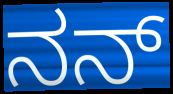
ನನ್